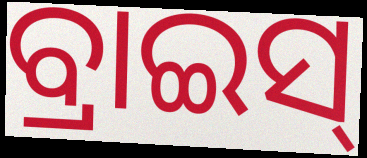
ବ୍ରାଇସ୍